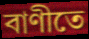
বাণীতে